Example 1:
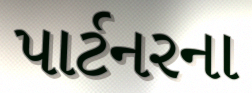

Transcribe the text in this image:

પાર્ટનરના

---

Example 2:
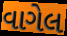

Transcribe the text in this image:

વાગેલ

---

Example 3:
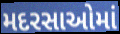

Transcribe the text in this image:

મદરસાઓમાં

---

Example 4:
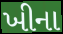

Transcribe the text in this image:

ખીના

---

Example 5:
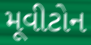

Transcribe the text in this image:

મૂવીટોન